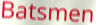
Batsmen